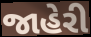
જાહેરી